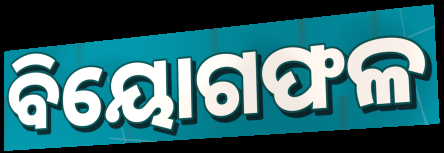
ବିୟୋଗଫଳ